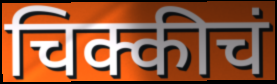
चिक्कीचं